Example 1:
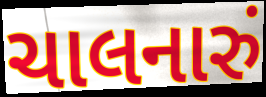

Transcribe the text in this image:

ચાલનારું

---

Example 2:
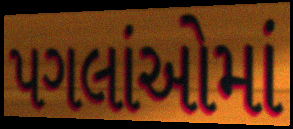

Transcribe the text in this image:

પગલાંઓમાં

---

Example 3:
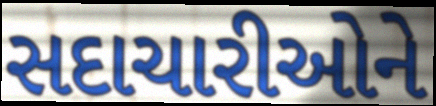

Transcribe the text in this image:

સદાચારીઓને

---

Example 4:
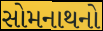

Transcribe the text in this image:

સોમનાથનો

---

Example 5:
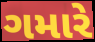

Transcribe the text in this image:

ગમારે